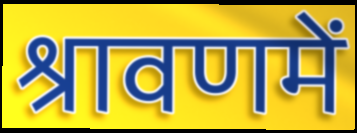
श्रावणमें